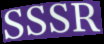
SSSR